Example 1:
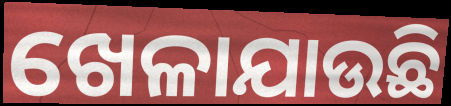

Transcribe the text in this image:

ଖେଳାଯାଉଛି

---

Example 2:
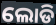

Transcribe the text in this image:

ଲୋଡି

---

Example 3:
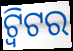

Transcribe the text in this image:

ଟ୍ୱିଟର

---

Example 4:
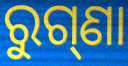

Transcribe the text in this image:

ରୁଗ୍‌ଣା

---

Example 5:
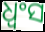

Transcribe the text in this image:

ଧ୍ୱଂସ